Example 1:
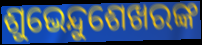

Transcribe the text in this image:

ଶୁଭେନ୍ଦୁଶେଖରଙ୍କ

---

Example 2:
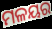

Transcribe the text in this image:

ମଳୟର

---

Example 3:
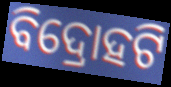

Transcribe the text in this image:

ବିଦ୍ରୋହଟି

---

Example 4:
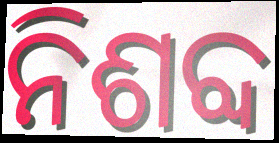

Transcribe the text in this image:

ନିଶବ୍ଦ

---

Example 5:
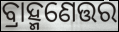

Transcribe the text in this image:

ବ୍ରାହ୍ମଣେତ୍ତର